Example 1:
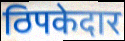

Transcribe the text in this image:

ठिपकेदार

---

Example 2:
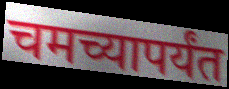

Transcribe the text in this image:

चमच्यापर्यंत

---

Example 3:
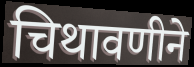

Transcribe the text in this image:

चिथावणीने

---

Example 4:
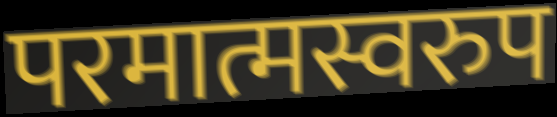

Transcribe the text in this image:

परमात्मस्वरुप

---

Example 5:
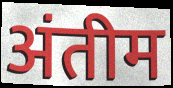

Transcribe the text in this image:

अंतीम